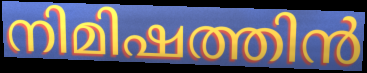
നിമിഷത്തിൻ